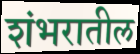
शंभरातील